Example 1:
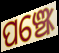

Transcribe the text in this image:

ପଞ୍ଝେ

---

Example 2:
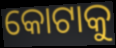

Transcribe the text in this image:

କୋଟାକୁ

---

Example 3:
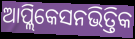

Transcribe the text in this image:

ଆପ୍ଲିକେସନଭିତ୍ତିକ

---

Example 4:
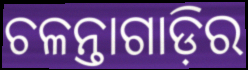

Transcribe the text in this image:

ଚଳନ୍ତାଗାଡ଼ିର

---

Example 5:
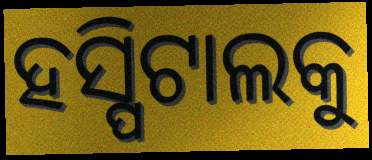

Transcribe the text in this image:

ହସ୍ପିଟାଲକୁ